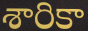
శారికా